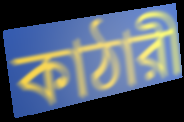
কাঠারী